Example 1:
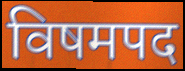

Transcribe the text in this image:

विषमपद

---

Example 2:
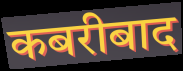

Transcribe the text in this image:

कबरीबाद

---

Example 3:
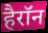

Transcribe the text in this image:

हैरॉन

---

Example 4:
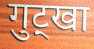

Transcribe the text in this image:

गुट्खा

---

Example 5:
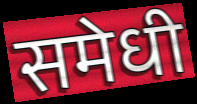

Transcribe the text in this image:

समेधी